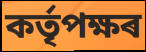
কৰ্তৃপক্ষৰ